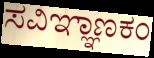
ಸವಿಞ್ಞಾಣಕಂ